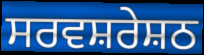
ਸਰਵਸ਼ਰੇਸ਼ਠ